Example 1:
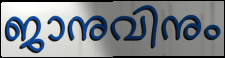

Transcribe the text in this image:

ജാനുവിനും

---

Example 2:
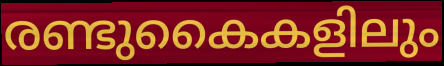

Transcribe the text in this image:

രണ്ടുകൈകളിലും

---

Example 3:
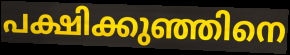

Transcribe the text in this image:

പക്ഷിക്കുഞ്ഞിനെ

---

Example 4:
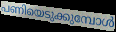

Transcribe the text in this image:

പണിയെടുക്കുമ്പോൾ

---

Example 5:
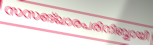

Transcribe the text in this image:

സസങ്ഖാരപരിനിബ്ബായീ